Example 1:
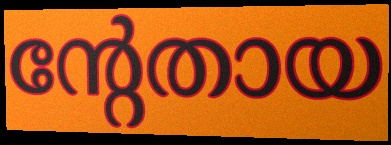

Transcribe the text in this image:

ന്റേതായ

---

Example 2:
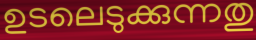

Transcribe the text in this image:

ഉടലെടുക്കുന്നതു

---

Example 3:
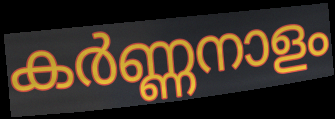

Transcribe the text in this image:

കർണ്ണനാളം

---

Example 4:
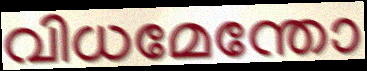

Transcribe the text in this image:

വിധമേന്തോ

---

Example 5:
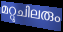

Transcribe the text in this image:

മറ്റുചിലരും